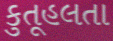
કુતૂહલતા